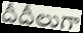
దీదీలుగా